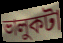
ভালুকটা